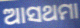
ଆସଥମା